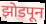
झोडपून